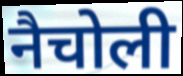
नैचोली